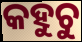
କହୁଚୁ